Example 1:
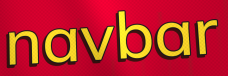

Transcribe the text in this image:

navbar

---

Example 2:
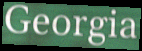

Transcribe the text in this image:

Georgia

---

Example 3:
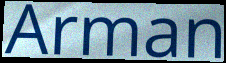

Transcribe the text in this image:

Arman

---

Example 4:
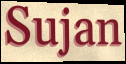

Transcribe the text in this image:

Sujan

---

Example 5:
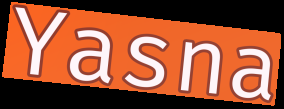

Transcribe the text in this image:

Yasna